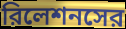
রিলেশনসের